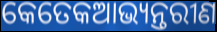
କେତେକଆଭ୍ୟନ୍ତରୀଣ